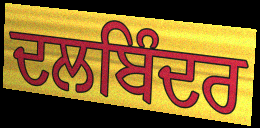
ਦਲਬਿੰਦਰ